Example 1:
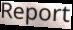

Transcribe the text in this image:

Report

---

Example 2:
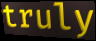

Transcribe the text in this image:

truly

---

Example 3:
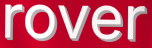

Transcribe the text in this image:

rover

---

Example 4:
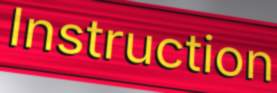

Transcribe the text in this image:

Instruction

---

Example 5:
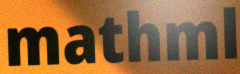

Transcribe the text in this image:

mathml